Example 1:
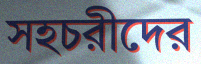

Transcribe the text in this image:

সহচরীদের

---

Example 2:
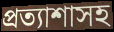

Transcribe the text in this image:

প্রত্যাশাসহ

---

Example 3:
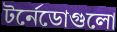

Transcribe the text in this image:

টর্নেডোগুলো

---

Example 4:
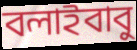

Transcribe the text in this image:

বলাইবাবু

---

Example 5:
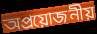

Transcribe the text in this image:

অপ্রয়োজনীয়